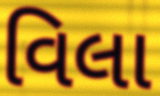
વિલા